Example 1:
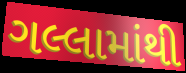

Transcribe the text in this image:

ગલ્લામાંથી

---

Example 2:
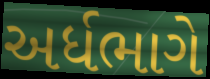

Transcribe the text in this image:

અર્ધભાગે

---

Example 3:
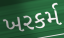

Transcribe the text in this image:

ખરકર્મ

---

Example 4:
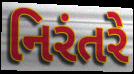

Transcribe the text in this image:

નિરંતરે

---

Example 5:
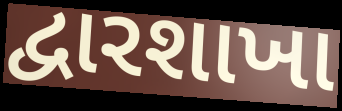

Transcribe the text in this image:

દ્વારશાખા